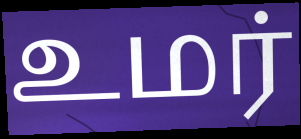
உமர்